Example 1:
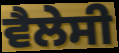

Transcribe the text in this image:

ਵੈਲੇਸੀ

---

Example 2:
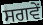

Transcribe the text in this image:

ਸਗਵੇਂ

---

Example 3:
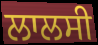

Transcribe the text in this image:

ਲਾਲਸੀ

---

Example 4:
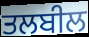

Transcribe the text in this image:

ਤਲਬੀਲ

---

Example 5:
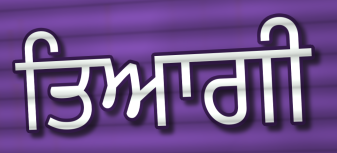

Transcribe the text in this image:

ਤਿਆਗੀ